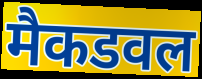
मैकडवल